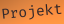
Projekt